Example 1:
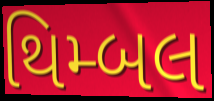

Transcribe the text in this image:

થિમ્બલ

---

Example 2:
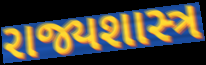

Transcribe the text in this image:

રાજ્યશાસ્ત્ર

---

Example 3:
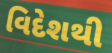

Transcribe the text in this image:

વિદેશથી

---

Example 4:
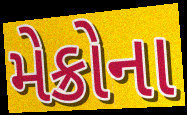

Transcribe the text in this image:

મેક્રોના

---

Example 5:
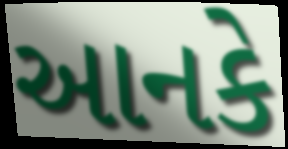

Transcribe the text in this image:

આનકે